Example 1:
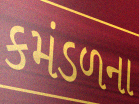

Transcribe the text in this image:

કમંડળના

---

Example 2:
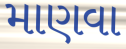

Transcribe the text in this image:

માણવા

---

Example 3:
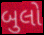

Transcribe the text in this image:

બુલો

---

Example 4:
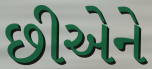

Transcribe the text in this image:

છીએને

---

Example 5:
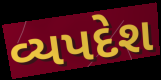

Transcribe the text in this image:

વ્યપદેશ